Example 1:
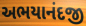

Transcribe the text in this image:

અભયાનંદજી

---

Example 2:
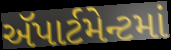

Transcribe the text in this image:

ઍપાર્ટમેન્ટમાં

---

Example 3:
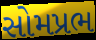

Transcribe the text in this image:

સોમપ્રભ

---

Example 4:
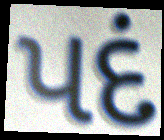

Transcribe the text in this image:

પદં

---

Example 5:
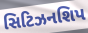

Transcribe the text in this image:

સિટિઝનશિપ